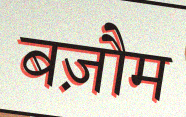
बज़ौम